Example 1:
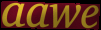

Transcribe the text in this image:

aawe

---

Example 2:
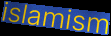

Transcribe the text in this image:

islamism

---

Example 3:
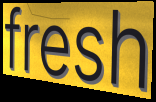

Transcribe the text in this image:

fresh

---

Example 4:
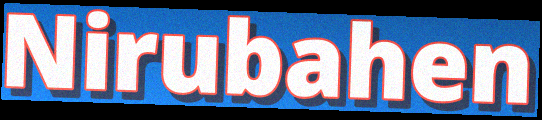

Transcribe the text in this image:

Nirubahen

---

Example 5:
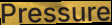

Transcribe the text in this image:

Pressure